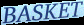
BASKET